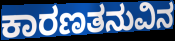
ಕಾರಣತನುವಿನ